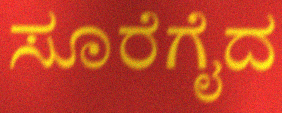
ಸೂರೆಗೈದ